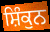
ਸ਼ਿੰਕੁਨ